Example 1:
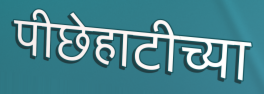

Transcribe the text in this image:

पीछेहाटीच्या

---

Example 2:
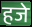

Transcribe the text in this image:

हजे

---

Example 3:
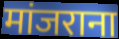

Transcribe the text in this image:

मांजराना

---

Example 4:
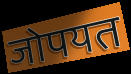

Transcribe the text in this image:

जोपयत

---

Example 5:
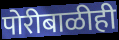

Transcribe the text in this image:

पोरीबाळीही